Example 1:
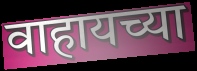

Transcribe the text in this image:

वाहायच्या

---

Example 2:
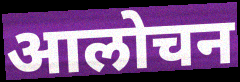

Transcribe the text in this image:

आलोचन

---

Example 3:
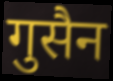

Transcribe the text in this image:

गुसैन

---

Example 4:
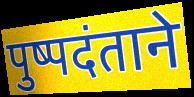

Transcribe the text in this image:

पुष्पदंताने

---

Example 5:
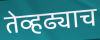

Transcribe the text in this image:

तेव्हढ्याच